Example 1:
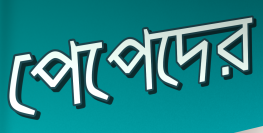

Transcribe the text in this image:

পেপেদের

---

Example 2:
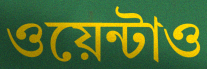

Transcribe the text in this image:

ওয়েন্টাও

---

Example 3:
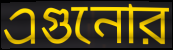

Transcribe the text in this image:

এগুনোর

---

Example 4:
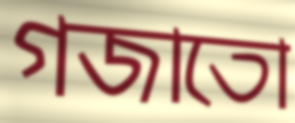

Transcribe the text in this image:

গজাতো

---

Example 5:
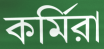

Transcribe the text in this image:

কর্মিরা